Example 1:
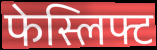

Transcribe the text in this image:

फेस्लिफ्ट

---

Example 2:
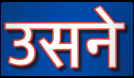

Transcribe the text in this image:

उसने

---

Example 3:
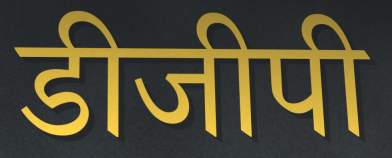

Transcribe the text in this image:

डीजीपी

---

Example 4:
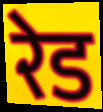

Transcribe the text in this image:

रेड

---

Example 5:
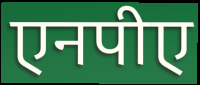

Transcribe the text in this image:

एनपीए